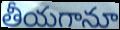
తీయగానూ